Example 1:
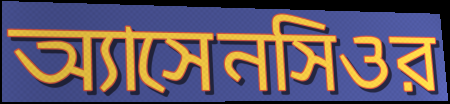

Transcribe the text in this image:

অ্যাসেনসিওর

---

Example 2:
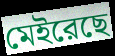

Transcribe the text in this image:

মেইরেছে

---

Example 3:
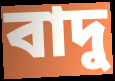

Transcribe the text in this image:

বাদু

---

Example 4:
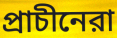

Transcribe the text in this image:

প্রাচীনেরা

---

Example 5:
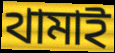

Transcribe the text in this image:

থামাই